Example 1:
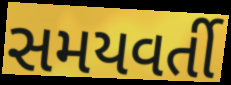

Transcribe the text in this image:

સમયવર્તી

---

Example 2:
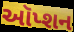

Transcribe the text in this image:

ઑપ્શન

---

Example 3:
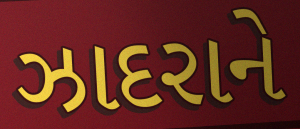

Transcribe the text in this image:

ઝાદરાને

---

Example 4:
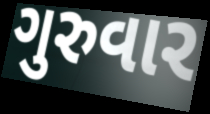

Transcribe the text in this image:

ગુરુવાર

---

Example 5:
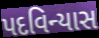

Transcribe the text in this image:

પદવિન્યાસ